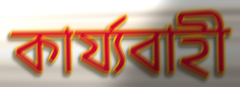
কাৰ্য্যবাহী